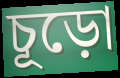
চূড়ো